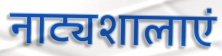
नाट्यशालाएं